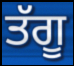
ਤੱਗੂ